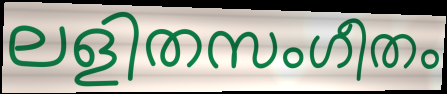
ലളിതസംഗീതം